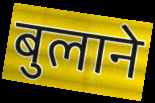
बुलाने